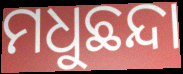
ମଧୁଛନ୍ଦା